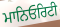
ਮਾਨਿਓਰਿਟੀ